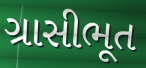
ગ્રાસીભૂત